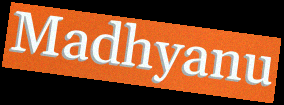
Madhyanu